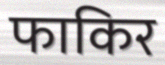
फाकिर